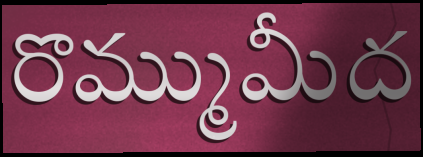
రొమ్ముమీద